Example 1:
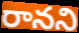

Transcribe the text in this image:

రానని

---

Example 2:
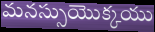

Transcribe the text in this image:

మనస్సుయొక్కయు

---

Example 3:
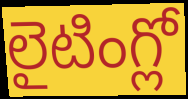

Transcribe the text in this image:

లైటింగ్లో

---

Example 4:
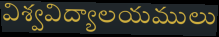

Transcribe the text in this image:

విశ్వవిద్యాలయములు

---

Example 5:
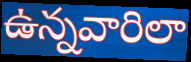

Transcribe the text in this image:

ఉన్నవారిలా